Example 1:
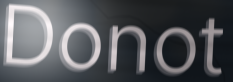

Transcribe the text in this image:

Donot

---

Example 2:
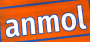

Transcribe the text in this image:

anmol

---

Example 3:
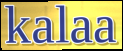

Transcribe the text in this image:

kalaa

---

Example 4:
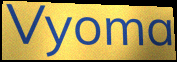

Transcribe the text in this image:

Vyoma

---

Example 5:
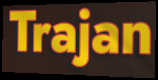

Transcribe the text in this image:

Trajan